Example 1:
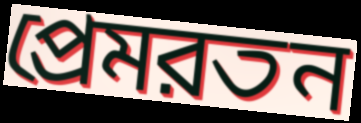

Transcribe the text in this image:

প্রেমরতন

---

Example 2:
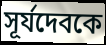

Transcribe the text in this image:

সূর্যদেবকে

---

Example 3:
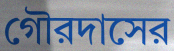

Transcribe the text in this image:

গৌরদাসের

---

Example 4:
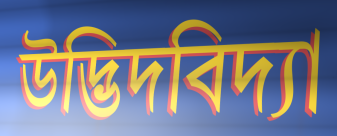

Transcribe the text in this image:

উদ্ভিদবিদ্যা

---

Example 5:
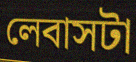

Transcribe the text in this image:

লেবাসটা